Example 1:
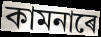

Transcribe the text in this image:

কামনাৰে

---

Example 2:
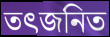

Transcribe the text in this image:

তৎজনিত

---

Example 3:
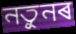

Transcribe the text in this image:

নতুনৰ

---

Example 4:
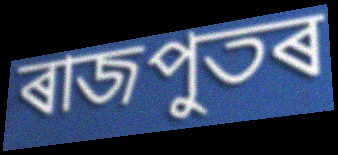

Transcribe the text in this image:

ৰাজপুতৰ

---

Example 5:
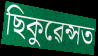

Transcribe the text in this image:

ছিকুৱেন্সত